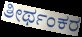
ತೀರ್ಥಂಕರ